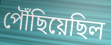
পৌঁছিয়েছিল